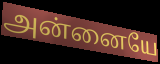
அன்னையே